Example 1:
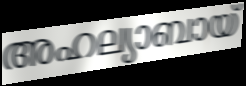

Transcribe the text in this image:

അഹല്യാബായ്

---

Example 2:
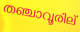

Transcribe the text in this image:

തഞ്ചാവൂരില്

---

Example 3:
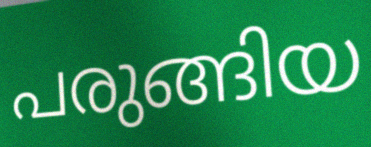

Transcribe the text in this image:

പരുങ്ങിയ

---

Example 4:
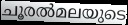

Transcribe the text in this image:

ചൂരൽമലയുടെ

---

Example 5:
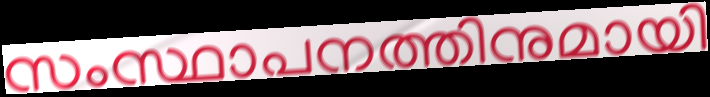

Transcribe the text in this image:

സംസ്ഥാപനത്തിനുമായി